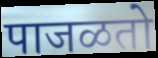
पाजळतो